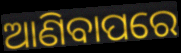
ଆଣିବାପରେ